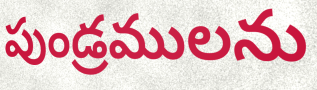
పుండ్రములను